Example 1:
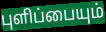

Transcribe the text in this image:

புளிப்பையும்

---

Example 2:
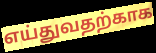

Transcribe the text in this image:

எய்துவதற்காக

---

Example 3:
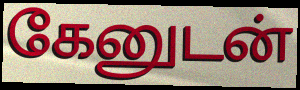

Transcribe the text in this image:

கேனுடன்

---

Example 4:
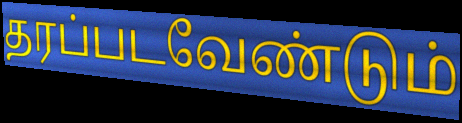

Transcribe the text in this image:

தரப்படவேண்டும்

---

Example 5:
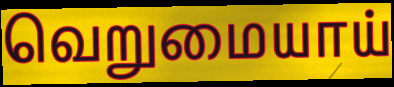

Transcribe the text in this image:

வெறுமையாய்